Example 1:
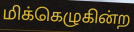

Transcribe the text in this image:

மிக்கெழுகின்ற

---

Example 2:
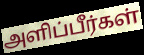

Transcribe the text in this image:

அளிப்பீர்கள்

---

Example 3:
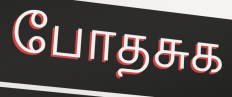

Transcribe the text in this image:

போதசுக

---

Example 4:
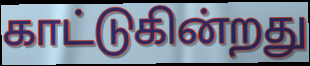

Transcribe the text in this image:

காட்டுகின்றது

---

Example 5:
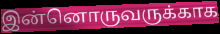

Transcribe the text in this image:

இன்னொருவருக்காக